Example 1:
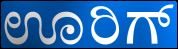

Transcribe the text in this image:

ಊರಿಗ್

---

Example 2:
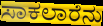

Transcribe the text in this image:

ಸಾಕಲಾರೆನು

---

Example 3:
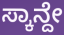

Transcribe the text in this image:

ಸ್ಕಾನ್ದೇ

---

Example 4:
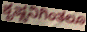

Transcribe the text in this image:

ಕೃಷ್ಣನಿಗಿಂತಲೂ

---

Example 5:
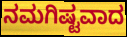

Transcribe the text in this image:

ನಮಗಿಷ್ಟವಾದ